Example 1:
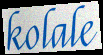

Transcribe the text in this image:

kolale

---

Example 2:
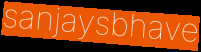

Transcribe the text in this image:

sanjaysbhave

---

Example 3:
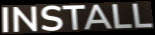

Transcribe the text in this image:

INSTALL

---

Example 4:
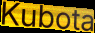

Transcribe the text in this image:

Kubota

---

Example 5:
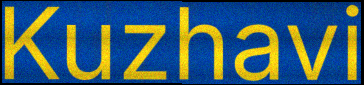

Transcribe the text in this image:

Kuzhavi